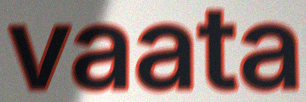
vaata